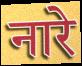
नारे